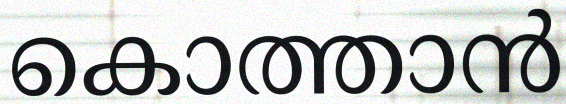
കൊത്താൻ